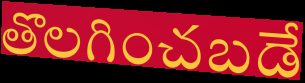
తొలగించబడే